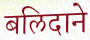
बलिदाने